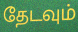
தேடவும்